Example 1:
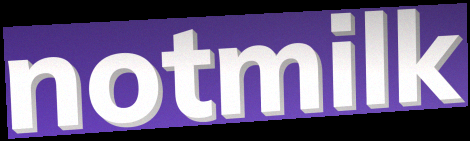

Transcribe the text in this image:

notmilk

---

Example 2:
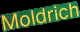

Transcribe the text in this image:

Moldrich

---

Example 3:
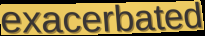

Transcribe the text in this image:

exacerbated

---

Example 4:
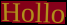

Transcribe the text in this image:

Hollo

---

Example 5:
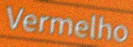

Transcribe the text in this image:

Vermelho